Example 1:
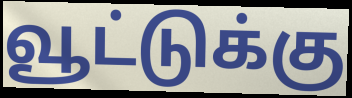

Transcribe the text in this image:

வூட்டுக்கு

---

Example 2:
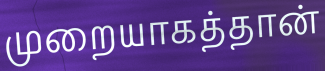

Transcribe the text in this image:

முறையாகத்தான்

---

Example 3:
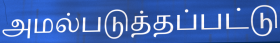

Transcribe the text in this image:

அமல்படுத்தப்பட்டு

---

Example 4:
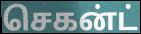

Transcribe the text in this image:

செகன்ட்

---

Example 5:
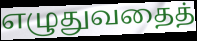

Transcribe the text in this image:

எழுதுவதைத்